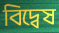
বিদ্বেষ